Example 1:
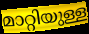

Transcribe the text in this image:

മാറ്റിയുള്ള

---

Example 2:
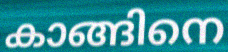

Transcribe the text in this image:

കാങ്ങിനെ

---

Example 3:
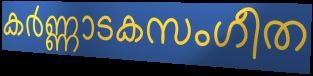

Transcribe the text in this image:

കർണ്ണാടകസംഗീത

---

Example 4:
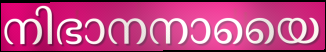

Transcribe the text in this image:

നിഭാനനായൈ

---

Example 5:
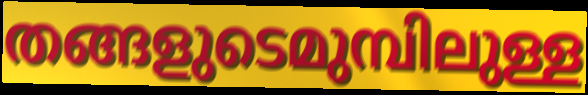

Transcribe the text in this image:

തങ്ങളുടെമുമ്പിലുള്ള